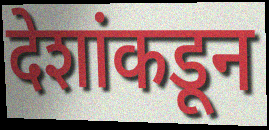
देशांकडून